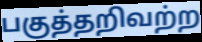
பகுத்தறிவற்ற